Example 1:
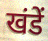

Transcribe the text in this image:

खंडें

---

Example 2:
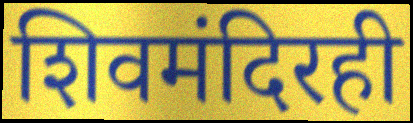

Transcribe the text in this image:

शिवमंदिरही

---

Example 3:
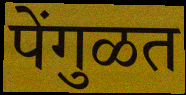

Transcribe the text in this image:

पेंगुळत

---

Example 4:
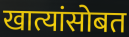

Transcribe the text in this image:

खात्यांसोबत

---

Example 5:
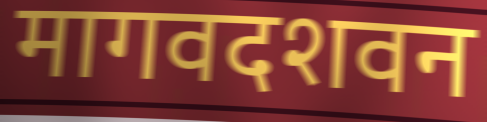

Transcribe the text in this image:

मागवदशवन